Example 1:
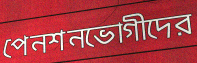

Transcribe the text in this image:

পেনশনভোগীদের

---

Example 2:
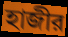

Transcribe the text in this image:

হাজীর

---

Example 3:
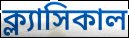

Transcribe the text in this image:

ক্ল্যাসিকাল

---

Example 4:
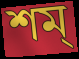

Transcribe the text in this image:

শম্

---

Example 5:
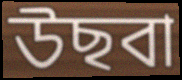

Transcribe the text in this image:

উছবা